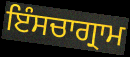
ਇੰਸਚਾਗ੍ਰਾਮ